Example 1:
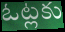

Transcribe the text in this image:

ఓట్లకు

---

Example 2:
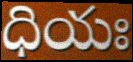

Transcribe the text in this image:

ధియః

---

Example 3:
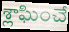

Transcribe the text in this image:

శ్లాఘించే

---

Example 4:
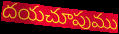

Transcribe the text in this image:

దయచూపుము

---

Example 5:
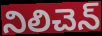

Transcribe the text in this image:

నిలిచెన్